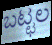
ಬಟ್ಟಲ